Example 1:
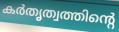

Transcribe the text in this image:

കർതൃത്വത്തിന്റെ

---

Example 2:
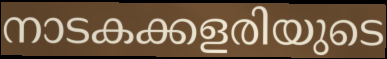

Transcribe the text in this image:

നാടകക്കളരിയുടെ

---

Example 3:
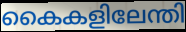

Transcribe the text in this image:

കൈകളിലേന്തി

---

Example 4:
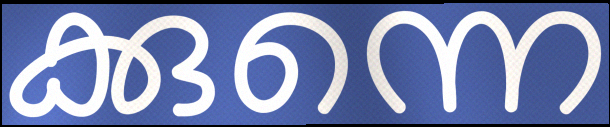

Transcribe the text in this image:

ക്കുന്നെ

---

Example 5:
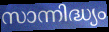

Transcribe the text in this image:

സാന്നിദ്ധ്യം